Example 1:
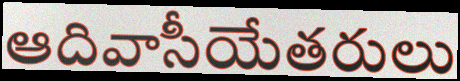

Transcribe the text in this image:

ఆదివాసీయేతరులు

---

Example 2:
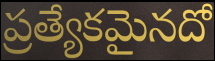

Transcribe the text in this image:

ప్రత్యేకమైనదో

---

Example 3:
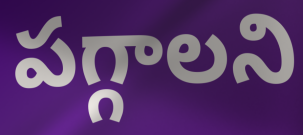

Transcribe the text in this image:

పగ్గాలని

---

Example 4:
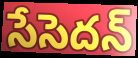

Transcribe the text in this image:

సేసెదన్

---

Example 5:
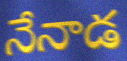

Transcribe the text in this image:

నేనాడ